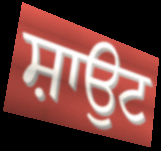
ਸ਼ਾਉਟ